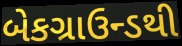
બેકગ્રાઉન્ડથી